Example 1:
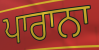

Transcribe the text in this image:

ਪਾਰਾਨਾ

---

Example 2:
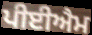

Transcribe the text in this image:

ਪੀਈਐਮ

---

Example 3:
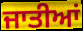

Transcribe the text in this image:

ਜਾਤੀਆਂ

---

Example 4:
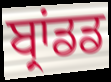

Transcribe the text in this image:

ਬ੍ਰਾਂਡਡ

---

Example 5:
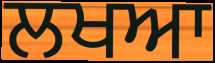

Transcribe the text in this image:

ਲਖਆ